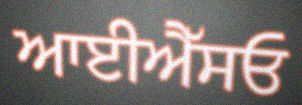
ਆਈਐੱਸਓ